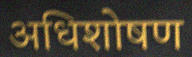
अधिशोषण